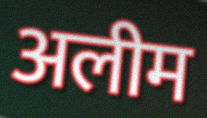
अलीम